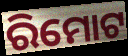
ରିମୋଟ